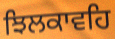
ਝਿਲਕਾਵਹਿ